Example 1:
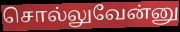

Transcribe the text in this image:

சொல்லுவேன்னு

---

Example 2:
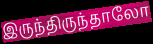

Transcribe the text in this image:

இருந்திருந்தாலோ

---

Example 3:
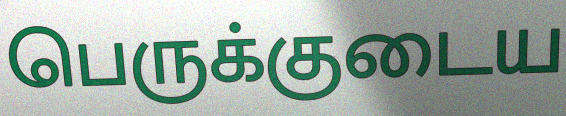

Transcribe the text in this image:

பெருக்குடைய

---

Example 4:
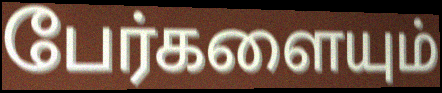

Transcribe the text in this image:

பேர்களையும்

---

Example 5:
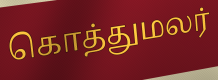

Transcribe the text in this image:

கொத்துமலர்